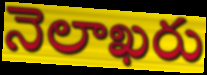
నెలాఖరు